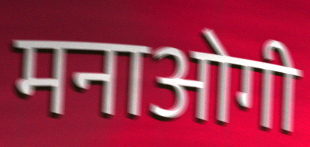
मनाओगी